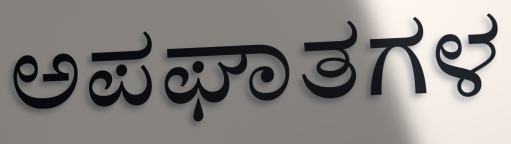
ಅಪಘಾತಗಳ